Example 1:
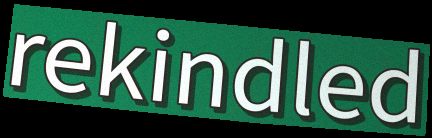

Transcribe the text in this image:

rekindled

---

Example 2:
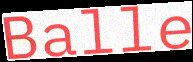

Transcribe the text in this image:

Balle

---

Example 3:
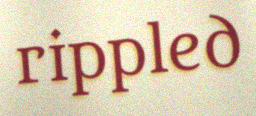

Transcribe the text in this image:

rippled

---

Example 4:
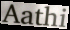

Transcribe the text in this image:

Aathi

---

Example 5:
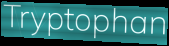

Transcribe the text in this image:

Tryptophan